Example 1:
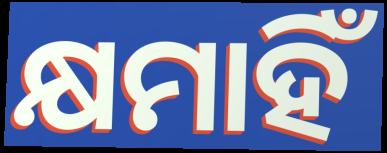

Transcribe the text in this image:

କ୍ଷମାହିଁ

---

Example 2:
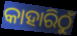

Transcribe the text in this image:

କାହାରିଠୁଁ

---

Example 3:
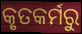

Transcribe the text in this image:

କୃତକର୍ମରୁ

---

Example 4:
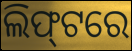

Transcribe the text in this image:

ଲିଫ୍‍ଟରେ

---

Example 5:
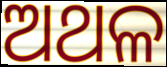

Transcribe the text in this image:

ଅଥଳ